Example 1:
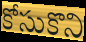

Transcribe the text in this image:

కోసుకొని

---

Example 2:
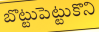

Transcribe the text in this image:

బొట్టుపెట్టుకొని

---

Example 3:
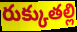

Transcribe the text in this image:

రుక్కుతల్లి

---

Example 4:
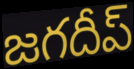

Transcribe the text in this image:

జగదీప్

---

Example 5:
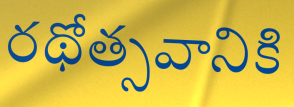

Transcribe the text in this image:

రథోత్సవానికి